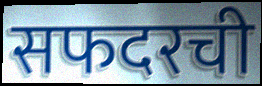
सफदरची